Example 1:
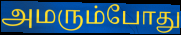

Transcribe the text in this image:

அமரும்போது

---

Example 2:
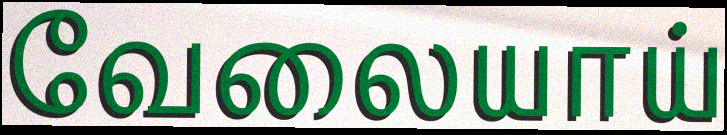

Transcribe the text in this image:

வேலையாய்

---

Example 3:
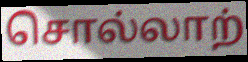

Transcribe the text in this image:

சொல்லாற்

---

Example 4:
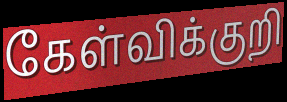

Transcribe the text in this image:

கேள்விக்குறி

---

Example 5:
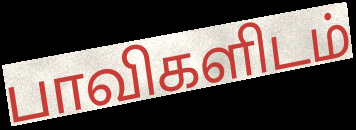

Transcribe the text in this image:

பாவிகளிடம்